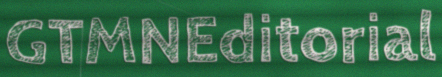
GTMNEditorial